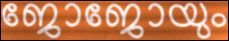
ജോജോയും